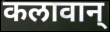
कलावान्